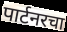
पार्टनरचा